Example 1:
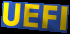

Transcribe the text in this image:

UEFI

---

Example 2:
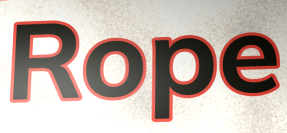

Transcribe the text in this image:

Rope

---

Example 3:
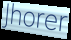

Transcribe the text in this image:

Jhorer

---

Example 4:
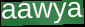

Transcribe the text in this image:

aawya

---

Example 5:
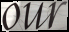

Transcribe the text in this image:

our